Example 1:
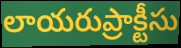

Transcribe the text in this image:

లాయరుప్రాక్టీసు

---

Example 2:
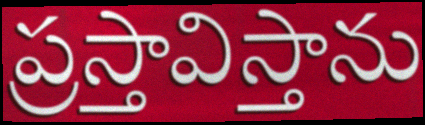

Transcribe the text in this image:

ప్రస్తావిస్తాను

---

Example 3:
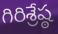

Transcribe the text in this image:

గిరిశ్రేష్ఠ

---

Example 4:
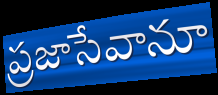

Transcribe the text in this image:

ప్రజాసేవానూ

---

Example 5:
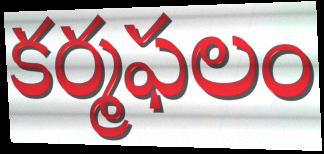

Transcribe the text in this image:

కర్మఫలం